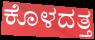
ಕೊಳದತ್ತ